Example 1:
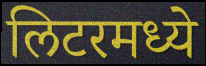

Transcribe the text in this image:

लिटरमध्ये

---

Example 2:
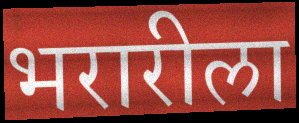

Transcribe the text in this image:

भरारीला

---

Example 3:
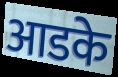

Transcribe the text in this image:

आडके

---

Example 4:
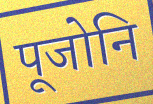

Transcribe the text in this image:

पूजोनि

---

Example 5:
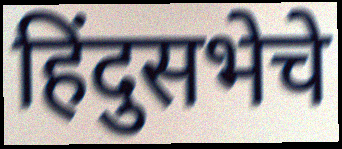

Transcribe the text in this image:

हिंदुसभेचे